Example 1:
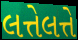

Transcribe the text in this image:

લત્તેલત્તે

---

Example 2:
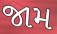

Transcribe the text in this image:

જામ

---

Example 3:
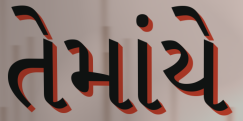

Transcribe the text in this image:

તેમાંયે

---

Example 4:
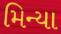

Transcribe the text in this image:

મિન્યા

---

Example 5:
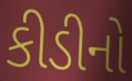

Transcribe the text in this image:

કીડીનો